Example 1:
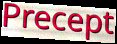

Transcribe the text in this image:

Precept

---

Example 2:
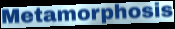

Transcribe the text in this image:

Metamorphosis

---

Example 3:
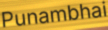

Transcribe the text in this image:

Punambhai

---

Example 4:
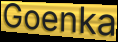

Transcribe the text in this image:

Goenka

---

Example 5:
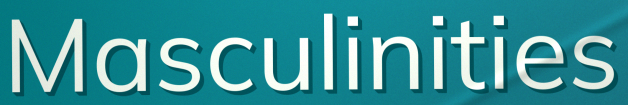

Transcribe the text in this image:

Masculinities